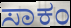
ಸಾಕಂ